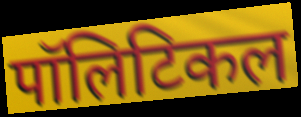
पॉलिटिकल